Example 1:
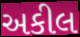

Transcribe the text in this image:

અકીલ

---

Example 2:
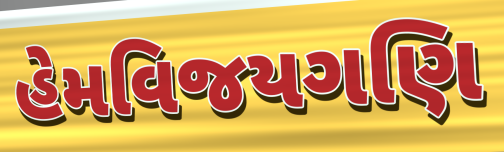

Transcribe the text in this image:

હેમવિજયગણિ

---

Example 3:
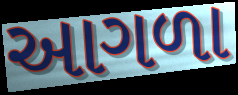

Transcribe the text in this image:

આગળા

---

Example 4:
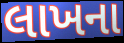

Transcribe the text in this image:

લાખના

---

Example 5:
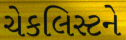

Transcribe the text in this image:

ચેકલિસ્ટને